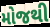
મોજથી